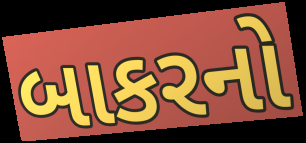
બાકરનો